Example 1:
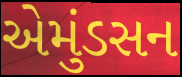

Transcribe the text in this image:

એમુંડસન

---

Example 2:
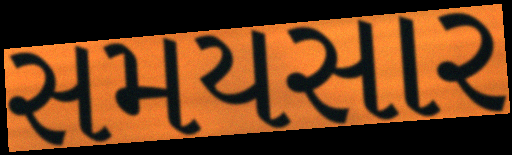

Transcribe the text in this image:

સમયસાર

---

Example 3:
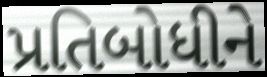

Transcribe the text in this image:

પ્રતિબોધીને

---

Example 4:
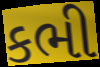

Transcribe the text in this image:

કભી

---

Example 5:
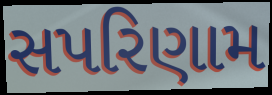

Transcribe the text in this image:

સપરિણામ